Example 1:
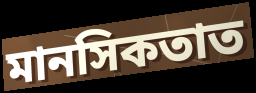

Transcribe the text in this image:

মানসিকতাত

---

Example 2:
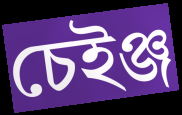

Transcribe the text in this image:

চেইঞ্জ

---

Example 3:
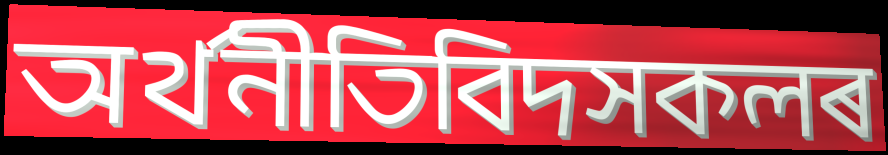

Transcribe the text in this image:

অৰ্থনীতিবিদসকলৰ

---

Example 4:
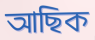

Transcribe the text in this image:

আছিক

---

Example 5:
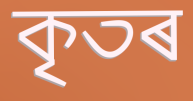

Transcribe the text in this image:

কৃতৰ